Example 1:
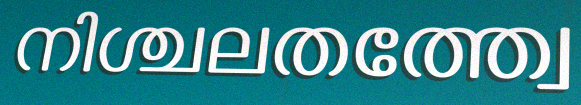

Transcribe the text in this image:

നിശ്ചലതത്ത്വേ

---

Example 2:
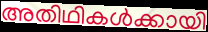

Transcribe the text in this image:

അതിഥികൾക്കായി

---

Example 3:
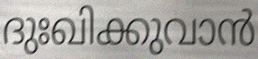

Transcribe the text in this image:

ദുഃഖിക്കുവാൻ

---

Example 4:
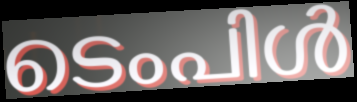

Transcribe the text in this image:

ടെംപിൾ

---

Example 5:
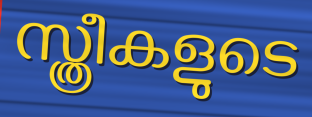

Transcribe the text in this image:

സ്ത്രീകളുടെ